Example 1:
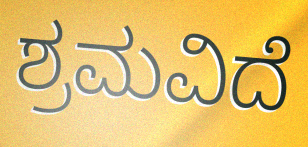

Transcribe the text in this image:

ಶ್ರಮವಿದೆ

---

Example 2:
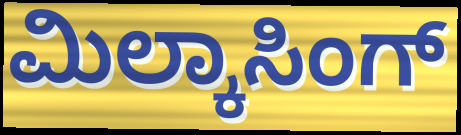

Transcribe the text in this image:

ಮಿಲ್ಕಾಸಿಂಗ್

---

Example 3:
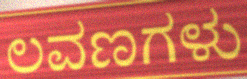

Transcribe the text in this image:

ಲವಣಗಳು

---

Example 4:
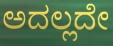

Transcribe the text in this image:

ಅದಲ್ಲದೇ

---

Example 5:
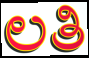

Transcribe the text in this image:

ಲತಿ